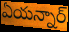
ఏయన్నార్